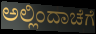
ಅಲ್ಲಿಂದಾಚೆಗೆ